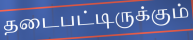
தடைபட்டிருக்கும்